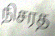
நிசரத